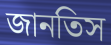
জানতিস